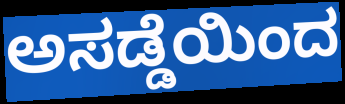
ಅಸಡ್ಡೆಯಿಂದ